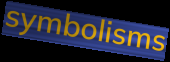
symbolisms